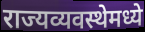
राज्यव्यवस्थेमध्ये